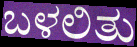
ಬಳಲಿತು